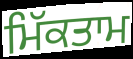
ਮਿੱਕਤਾਮ